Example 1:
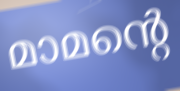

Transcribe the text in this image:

മാമന്റെ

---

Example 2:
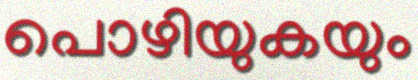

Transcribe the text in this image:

പൊഴിയുകയും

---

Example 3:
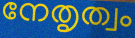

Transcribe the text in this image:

നേതൃത്വം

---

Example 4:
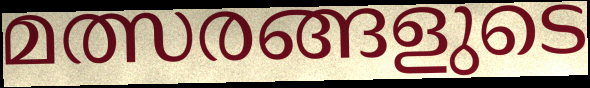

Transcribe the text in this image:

മത്സരങ്ങളുടെ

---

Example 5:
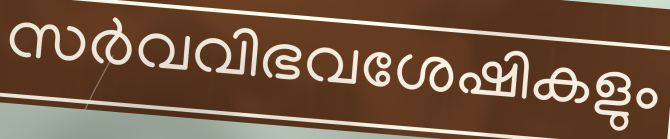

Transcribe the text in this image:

സർവവിഭവശേഷികളും